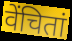
वेंचितां